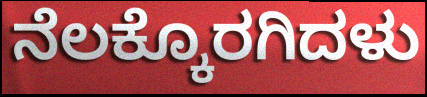
ನೆಲಕ್ಕೊರಗಿದಳು